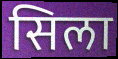
सिला